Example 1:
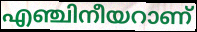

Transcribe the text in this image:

എഞ്ചിനീയറാണ്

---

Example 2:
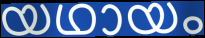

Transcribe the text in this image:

യഥായം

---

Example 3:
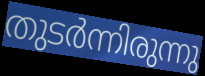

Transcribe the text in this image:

തുടർന്നിരുന്നു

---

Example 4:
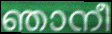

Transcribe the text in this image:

ഞാനീ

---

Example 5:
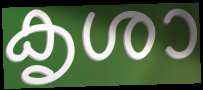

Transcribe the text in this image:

കൃശാ